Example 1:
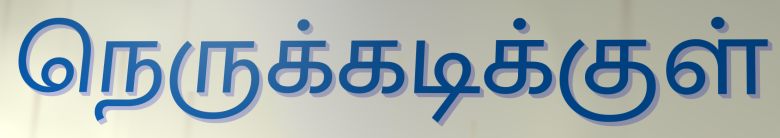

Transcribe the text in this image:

நெருக்கடிக்குள்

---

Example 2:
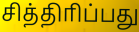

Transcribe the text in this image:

சித்திரிப்பது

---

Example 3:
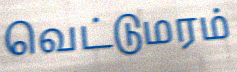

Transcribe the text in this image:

வெட்டுமரம்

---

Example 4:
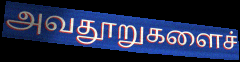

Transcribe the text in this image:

அவதூறுகளைச்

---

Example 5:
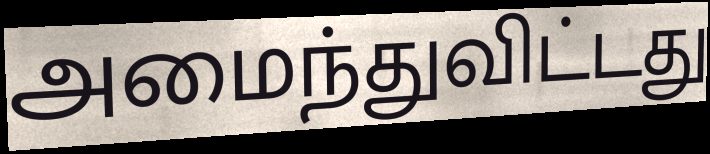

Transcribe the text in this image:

அமைந்துவிட்டது